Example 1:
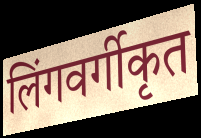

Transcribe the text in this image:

लिंगवर्गीकृत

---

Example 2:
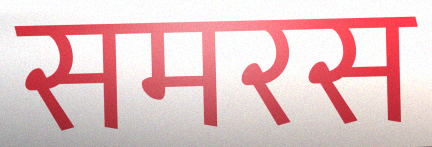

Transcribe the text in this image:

समरस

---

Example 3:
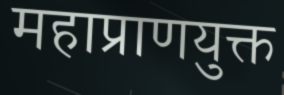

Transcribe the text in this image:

महाप्राणयुक्त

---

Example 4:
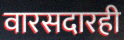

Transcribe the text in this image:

वारसदारही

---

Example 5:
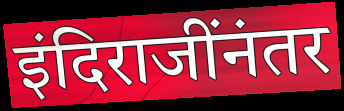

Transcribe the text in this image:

इंदिराजींनंतर